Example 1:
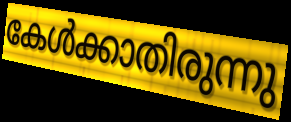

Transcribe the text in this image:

കേൾക്കാതിരുന്നു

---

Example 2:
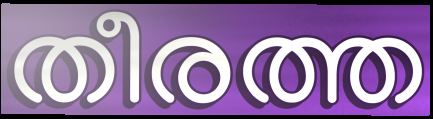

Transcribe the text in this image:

തീരത്ത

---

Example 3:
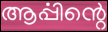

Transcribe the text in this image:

ആൎപ്പിന്റെ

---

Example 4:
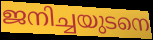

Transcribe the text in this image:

ജനിച്ചയുടനെ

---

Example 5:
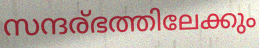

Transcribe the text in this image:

സന്ദര്ഭത്തിലേക്കും